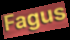
Fagus